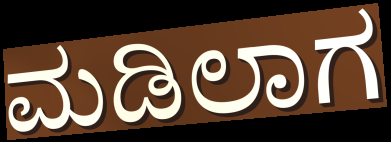
ಮಡಿಲಾಗ